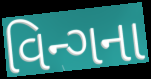
વિન્ગના